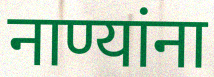
नाण्यांना